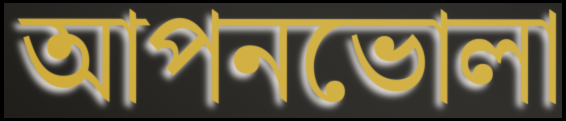
আপনভোলা